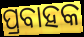
ପ୍ରବାହକ